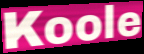
Koole